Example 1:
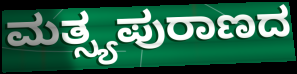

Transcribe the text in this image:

ಮತ್ಸ್ಯಪುರಾಣದ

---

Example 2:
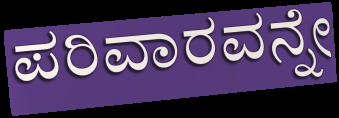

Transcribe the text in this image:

ಪರಿವಾರವನ್ನೇ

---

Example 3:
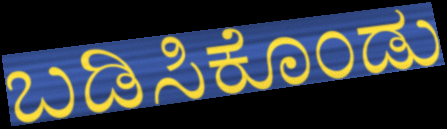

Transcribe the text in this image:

ಬಡಿಸಿಕೊಂಡು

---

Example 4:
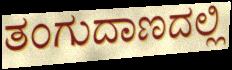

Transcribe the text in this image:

ತಂಗುದಾಣದಲ್ಲಿ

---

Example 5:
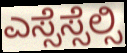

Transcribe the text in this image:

ಎಸ್ಸೆಸ್ಸೆಲ್ಸಿ